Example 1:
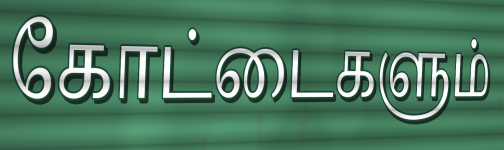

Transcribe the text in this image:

கோட்டைகளும்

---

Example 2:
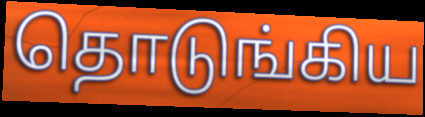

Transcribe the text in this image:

தொடுங்கிய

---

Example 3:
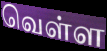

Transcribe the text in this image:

வெள்ள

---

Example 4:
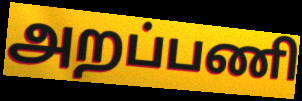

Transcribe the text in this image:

அறப்பணி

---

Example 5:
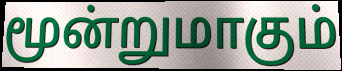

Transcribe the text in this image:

மூன்றுமாகும்